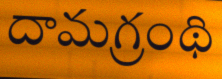
దామగ్రంథి